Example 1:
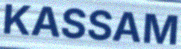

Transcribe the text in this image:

KASSAM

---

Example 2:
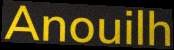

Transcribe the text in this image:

Anouilh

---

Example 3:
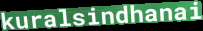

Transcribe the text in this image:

kuralsindhanai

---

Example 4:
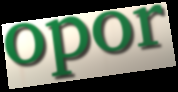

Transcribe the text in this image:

opor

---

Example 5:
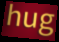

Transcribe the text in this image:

hug